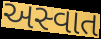
અસ્વાત